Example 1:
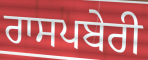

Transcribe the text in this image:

ਰਾਸਪਬੇਰੀ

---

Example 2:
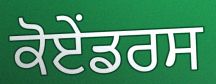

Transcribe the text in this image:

ਕੋਏਂਡਰਸ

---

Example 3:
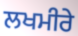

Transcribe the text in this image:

ਲਖਮੀਰੇ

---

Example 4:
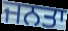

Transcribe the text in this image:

ਜਨਤਾ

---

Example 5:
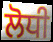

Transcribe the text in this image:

ਲੋਧੀ